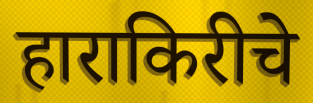
हाराकिरीचे